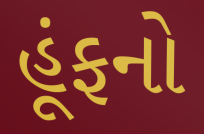
હૂંફનો